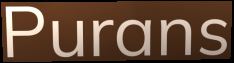
Purans